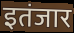
इतंजार